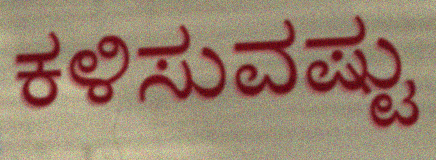
ಕಳಿಸುವಷ್ಟು